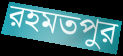
রহমতপুর